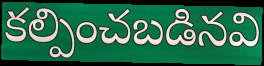
కల్పించబడినవి